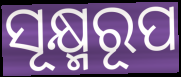
ସୂକ୍ଷ୍ମରୂପ